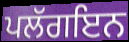
ਪਲੱਗਇਨ